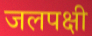
जलपक्षी